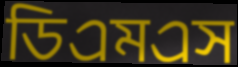
ডিএমএস